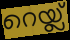
റെയ്ല്